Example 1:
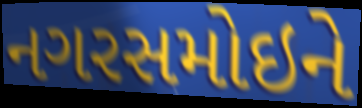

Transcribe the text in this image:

નગરસમોઇને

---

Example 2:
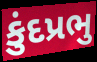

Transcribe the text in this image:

કુંદપ્રભુ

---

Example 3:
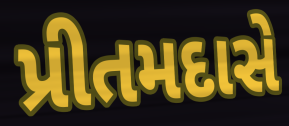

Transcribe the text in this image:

પ્રીતમદાસે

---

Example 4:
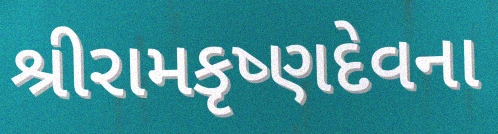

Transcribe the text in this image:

શ્રીરામકૃષ્ણદેવના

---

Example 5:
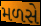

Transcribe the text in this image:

મળસે